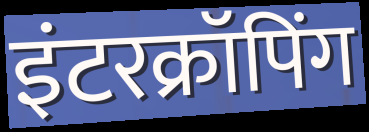
इंटरक्रॉपिंग